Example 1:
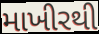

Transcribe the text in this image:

માખીરથી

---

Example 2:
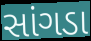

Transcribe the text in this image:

સાંગડા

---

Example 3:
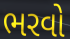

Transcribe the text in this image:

ભરવો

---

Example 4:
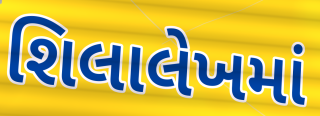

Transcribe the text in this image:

શિલાલેખમાં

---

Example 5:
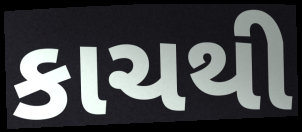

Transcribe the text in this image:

કાચથી